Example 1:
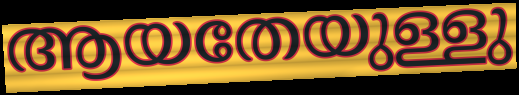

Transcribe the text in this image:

ആയതേയുള്ളു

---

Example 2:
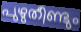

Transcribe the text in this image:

പുഴുതീണ്ടും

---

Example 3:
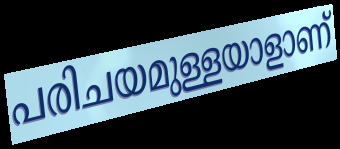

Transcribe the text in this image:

പരിചയമുള്ളയാളാണ്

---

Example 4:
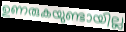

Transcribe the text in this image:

ഉണരുകയുണ്ടായില്ല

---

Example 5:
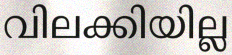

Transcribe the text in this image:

വിലക്കിയില്ല